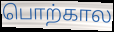
பொற்கால